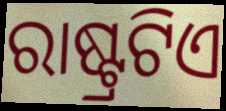
ରାଷ୍ଟ୍ରଟିଏ